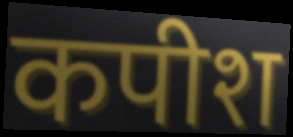
कपीश